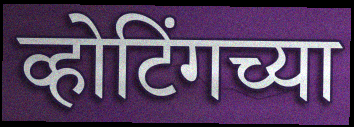
व्होटिंगच्या